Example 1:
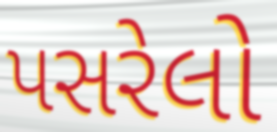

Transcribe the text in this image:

પસરેલો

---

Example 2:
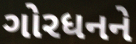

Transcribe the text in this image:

ગોરધનને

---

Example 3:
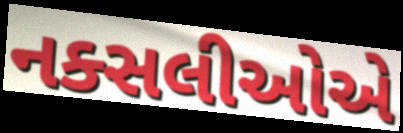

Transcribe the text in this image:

નક્સલીઓએ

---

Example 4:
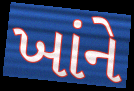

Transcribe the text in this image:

ખાંને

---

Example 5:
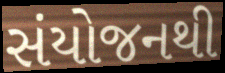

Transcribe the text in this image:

સંયોજનથી